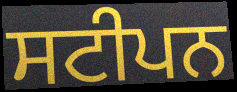
ਸਟੀਪਨ